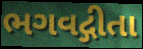
ભગવદ્ગીતા